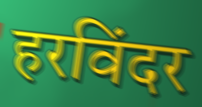
हरविंदर